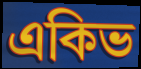
একিভ